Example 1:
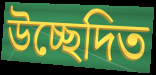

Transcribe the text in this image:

উচ্ছেদিত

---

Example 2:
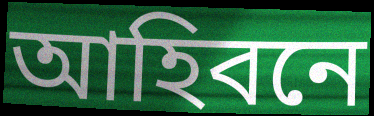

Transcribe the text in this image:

আহিবনে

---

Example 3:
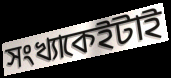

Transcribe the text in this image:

সংখ্যাকেইটাই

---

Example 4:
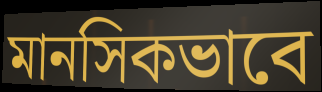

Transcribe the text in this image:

মানসিকভাবে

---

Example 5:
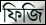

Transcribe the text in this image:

ফিজি